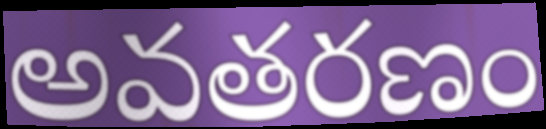
అవతరణం